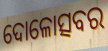
ଦୋଳୋତ୍ସବର